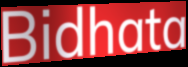
Bidhata